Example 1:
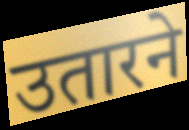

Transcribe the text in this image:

उतारने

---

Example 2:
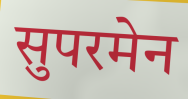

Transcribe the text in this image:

सुपरमेन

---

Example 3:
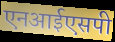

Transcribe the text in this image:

एनआईएसपी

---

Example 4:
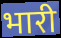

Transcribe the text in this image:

भारी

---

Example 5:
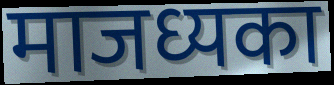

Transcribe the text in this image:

माजध्यका